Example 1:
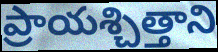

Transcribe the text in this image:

ప్రాయశ్చిత్తాని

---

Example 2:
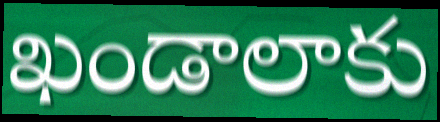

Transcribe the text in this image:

ఖండాలాకు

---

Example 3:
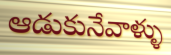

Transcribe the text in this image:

ఆడుకునేవాళ్ళు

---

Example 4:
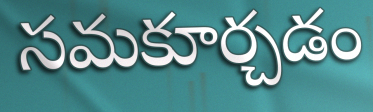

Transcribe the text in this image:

సమకూర్చడం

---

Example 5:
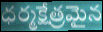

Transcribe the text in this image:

ధర్మక్షేత్రమైన